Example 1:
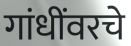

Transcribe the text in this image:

गांधींवरचे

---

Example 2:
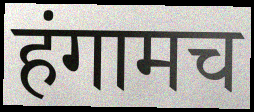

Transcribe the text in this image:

हंगामच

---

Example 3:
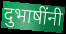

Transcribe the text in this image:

दुभाषींनी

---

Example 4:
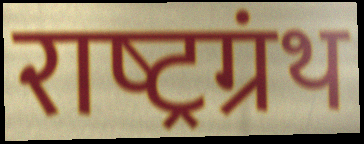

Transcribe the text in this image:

राष्ट्रग्रंथ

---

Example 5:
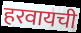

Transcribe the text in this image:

हरवायची